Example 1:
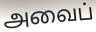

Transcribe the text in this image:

அவைப்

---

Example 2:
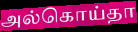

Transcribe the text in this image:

அல்கொய்தா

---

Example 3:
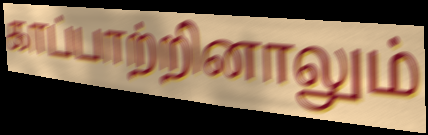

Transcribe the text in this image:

காப்பாற்றினாலும்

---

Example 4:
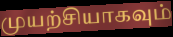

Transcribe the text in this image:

முயற்சியாகவும்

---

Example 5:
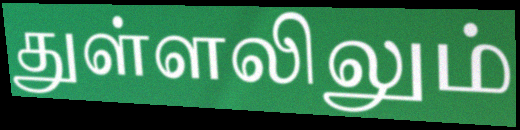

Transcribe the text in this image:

துள்ளலிலும்